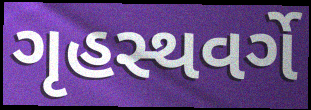
ગૃહસ્થવર્ગે